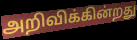
அறிவிக்கின்றது